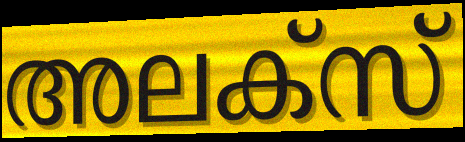
അലക്സ്